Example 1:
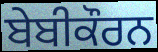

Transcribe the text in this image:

ਬੇਬੀਕੌਰਨ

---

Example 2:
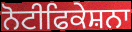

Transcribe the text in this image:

ਨੋਟੀਫਿਕੇਸ਼ਨਾ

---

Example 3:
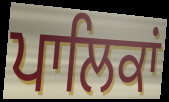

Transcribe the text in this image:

ਪਾਲਿਕਾਂ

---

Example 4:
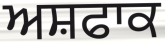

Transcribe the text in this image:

ਅਸ਼ਫਾਕ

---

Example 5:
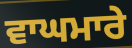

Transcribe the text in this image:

ਵਾਘਮਾਰੇ